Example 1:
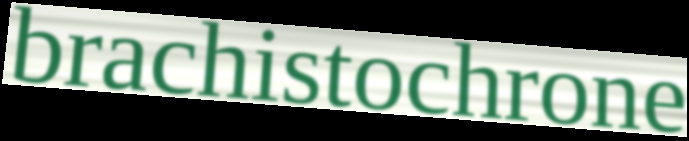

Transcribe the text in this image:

brachistochrone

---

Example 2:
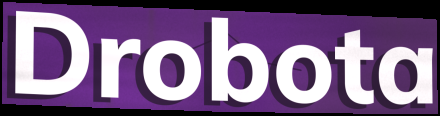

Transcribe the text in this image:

Drobota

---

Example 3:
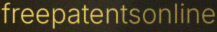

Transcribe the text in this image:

freepatentsonline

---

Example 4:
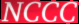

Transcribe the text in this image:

NCCC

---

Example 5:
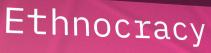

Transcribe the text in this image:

Ethnocracy